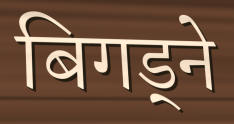
बिगड्ने